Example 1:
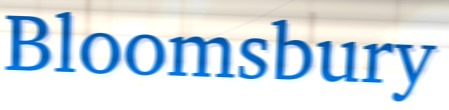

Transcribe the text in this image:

Bloomsbury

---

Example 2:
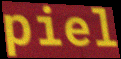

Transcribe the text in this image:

piel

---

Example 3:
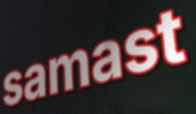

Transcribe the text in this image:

samast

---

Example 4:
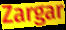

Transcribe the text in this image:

Zargar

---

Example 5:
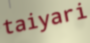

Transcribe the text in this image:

taiyari